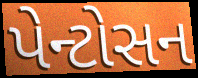
પેન્ટોસન